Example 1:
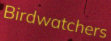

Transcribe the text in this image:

Birdwatchers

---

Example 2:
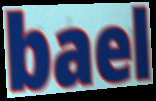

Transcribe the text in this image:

bael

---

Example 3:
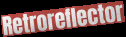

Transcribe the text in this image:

Retroreflector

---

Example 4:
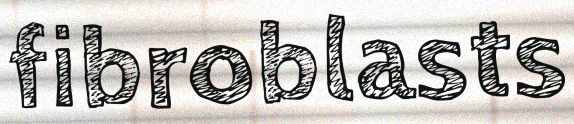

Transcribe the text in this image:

fibroblasts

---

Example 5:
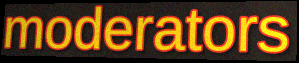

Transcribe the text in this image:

moderators